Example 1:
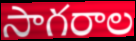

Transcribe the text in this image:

సాగరాల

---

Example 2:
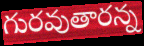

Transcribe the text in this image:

గురవుతారన్న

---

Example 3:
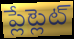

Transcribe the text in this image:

ప్లేట్లెట్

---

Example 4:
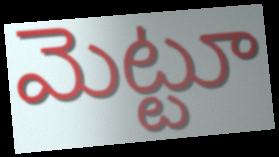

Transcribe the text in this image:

మెట్టూ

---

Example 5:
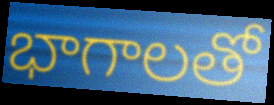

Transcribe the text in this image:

భాగాలతో